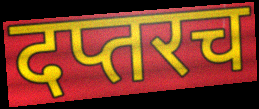
दप्तरच